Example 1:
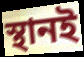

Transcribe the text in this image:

স্থানই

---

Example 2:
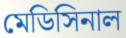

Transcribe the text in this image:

মেডিসিনাল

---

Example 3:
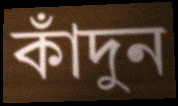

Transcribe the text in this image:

কাঁদুন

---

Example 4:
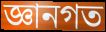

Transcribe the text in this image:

জ্ঞানগত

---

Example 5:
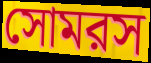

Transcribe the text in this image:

সোমরস